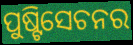
ପୁଷ୍ଟିସେଚନର